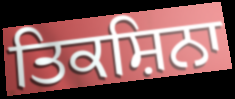
ਤਿਕਸ਼ਿਨਾ